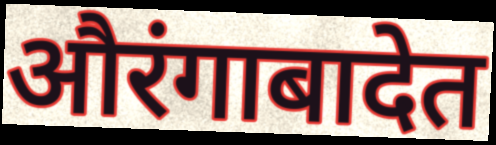
औरंगाबादेत